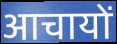
आचायों